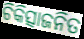
ଚିକିତ୍ସାଜନିତ